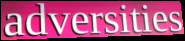
adversities